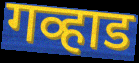
गव्हाड